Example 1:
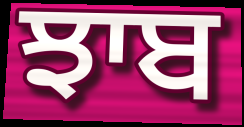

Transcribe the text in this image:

ਝਾਬ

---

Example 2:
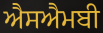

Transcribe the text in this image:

ਐਸਐਮਬੀ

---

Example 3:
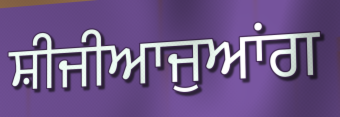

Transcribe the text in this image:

ਸ਼ੀਜੀਆਜੁਆਂਗ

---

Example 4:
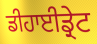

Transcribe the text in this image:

ਡੀਹਾਈਡ੍ਰੇਟ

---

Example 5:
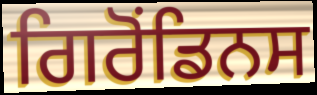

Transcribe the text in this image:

ਗਿਰੋਂਡਿਨਸ